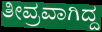
ತೀವ್ರವಾಗಿದ್ದ